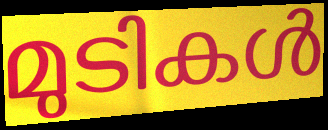
മുടികൾ